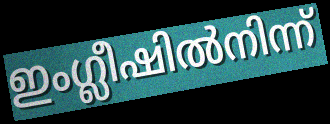
ഇംഗ്ലീഷിൽനിന്ന്